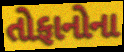
તોફાનોના